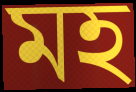
মহ